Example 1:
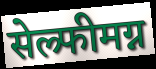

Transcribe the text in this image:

सेल्फीमग्न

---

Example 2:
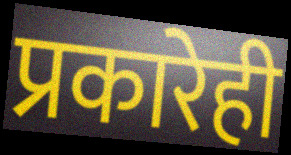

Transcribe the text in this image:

प्रकारेही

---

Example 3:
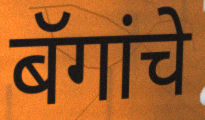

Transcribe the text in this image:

बॅगांचे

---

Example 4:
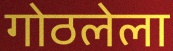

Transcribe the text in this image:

गोठलेला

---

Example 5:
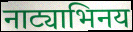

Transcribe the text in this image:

नाट्याभिनय